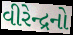
વીરેન્દ્રનો